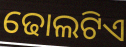
ଢୋଲଟିଏ